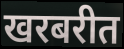
खरबरीत